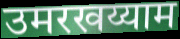
उमरखय्याम